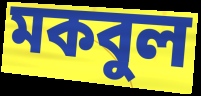
মকবুল